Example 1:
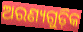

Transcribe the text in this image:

ଅରଣ୍ୟଗୁଡ଼ିକ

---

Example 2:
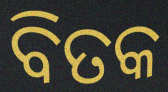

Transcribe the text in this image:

ବିତକ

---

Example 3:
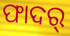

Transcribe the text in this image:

ଫାଦର୍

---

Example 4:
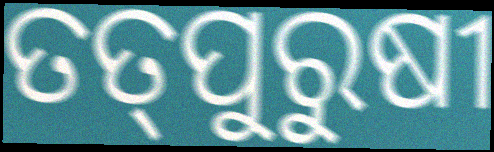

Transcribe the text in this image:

ତତ୍‌ପୁରୁଷୀ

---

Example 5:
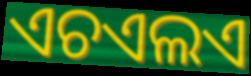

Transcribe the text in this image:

ଏଚଏଲଏ